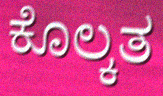
ಕೊಲ್ಕತ